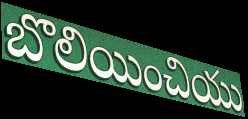
బొలియించియు